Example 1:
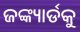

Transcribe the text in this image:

ଜଙ୍କ୍ୟାର୍ଡକୁ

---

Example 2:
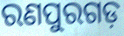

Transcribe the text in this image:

ରଣପୁରଗଡ଼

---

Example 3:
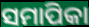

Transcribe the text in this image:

ସମାପିକା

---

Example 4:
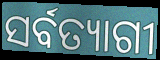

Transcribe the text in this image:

ସର୍ବତ୍ୟାଗୀ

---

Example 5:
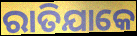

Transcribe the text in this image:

ରାତିଯାକେ